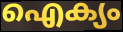
ഐക്യം